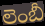
లెంబీ